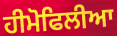
ਹੀਮੋਫਿਲੀਆ